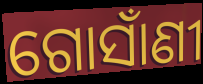
ଗୋସାଁଣୀ